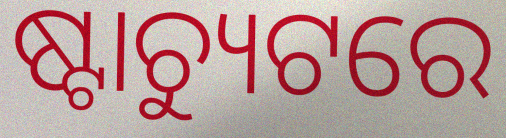
ଷ୍ଟାଚ୍ୟୁଟରେ